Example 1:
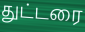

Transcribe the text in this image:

துட்டரை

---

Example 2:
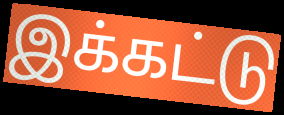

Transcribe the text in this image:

இக்கட்டு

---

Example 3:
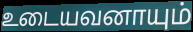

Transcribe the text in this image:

உடையவனாயும்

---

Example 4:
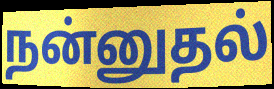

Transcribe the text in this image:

நன்னுதல்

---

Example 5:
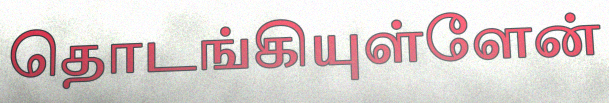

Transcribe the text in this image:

தொடங்கியுள்ளேன்